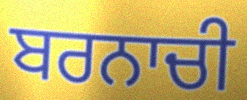
ਬਰਨਾਚੀ